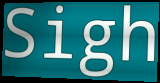
Sigh